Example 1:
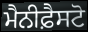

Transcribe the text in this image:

ਮੈਨੀਫ਼ੈਸਟੋ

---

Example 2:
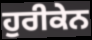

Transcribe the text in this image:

ਹੁਰੀਕੇਨ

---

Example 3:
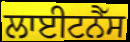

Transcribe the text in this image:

ਲਾਈਟਨੈੱਸ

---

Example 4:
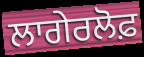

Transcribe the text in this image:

ਲਾਗੇਰਲੋਫ਼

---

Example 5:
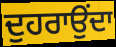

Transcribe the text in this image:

ਦੁਹਰਾਉਂਦਾ